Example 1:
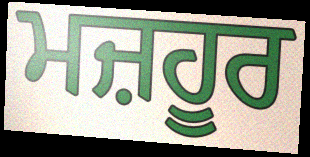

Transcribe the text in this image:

ਮਜ਼ਹੂਰ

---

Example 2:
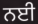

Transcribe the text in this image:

ਨਈ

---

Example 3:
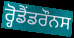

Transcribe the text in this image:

ਰ੍ਹੋਡੈਂਡਰੌਨਸ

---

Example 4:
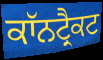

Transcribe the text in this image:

ਕਾੱਨਟ੍ਰੈਕਟ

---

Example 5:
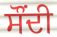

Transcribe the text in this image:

ਸੌਂਦੀ